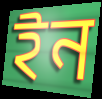
ইন